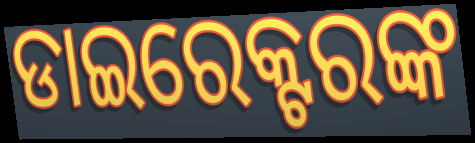
ଡାଇରେକ୍ଟରଙ୍କ